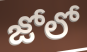
జోలో